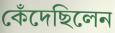
কেঁদেছিলেন